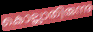
കൊല്ലാതിരുന്നു